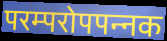
परम्परोपपन्नक